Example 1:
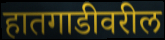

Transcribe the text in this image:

हातगाडीवरील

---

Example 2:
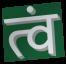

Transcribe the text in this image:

त्वं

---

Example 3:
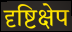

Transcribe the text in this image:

दृष्टिक्षेप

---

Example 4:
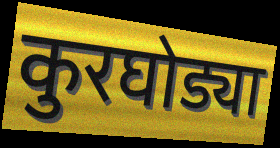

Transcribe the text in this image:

कुरघोड्या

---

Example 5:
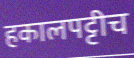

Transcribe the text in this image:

हकालपट्टीच